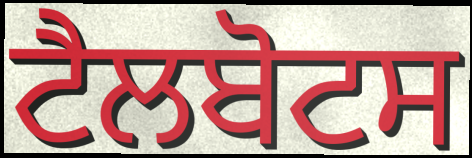
ਟੈਲਬੋਟਸ